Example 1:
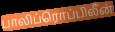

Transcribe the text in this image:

பாலிப்ரொப்பிலீன்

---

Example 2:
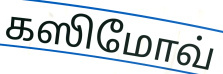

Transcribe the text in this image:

கஸிமோவ்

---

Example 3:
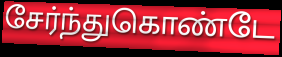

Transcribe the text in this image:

சேர்ந்துகொண்டே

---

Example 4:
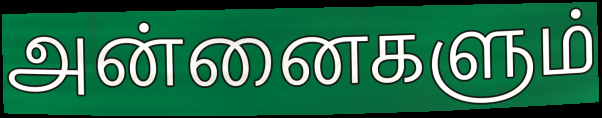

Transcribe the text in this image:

அன்னைகளும்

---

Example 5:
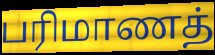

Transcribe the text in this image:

பரிமாணத்